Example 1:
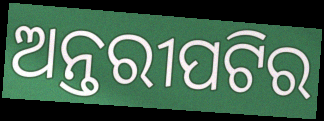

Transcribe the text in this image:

ଅନ୍ତରୀପଟିର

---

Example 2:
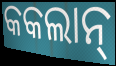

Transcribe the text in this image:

କକଲାନ୍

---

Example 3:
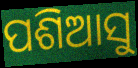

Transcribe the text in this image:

ପଶିଆସୁ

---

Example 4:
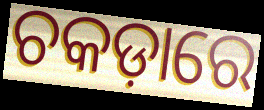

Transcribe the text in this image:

ଚକଡ଼ାରେ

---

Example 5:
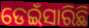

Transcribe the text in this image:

ଡେଇଁସାରିଛି